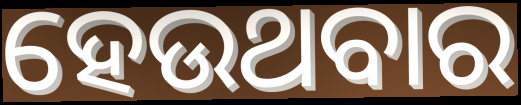
ହେଉଥବାର